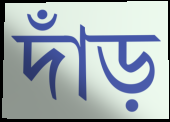
দাঁড়